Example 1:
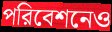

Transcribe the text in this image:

পরিবেশনেও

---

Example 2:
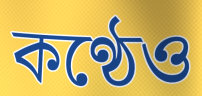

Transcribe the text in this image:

কণ্ঠেও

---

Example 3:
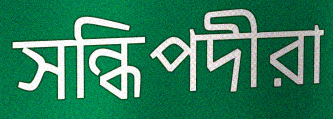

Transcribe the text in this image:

সন্ধিপদীরা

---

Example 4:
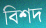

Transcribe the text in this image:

বিশদ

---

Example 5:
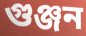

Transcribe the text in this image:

গুঞ্জন